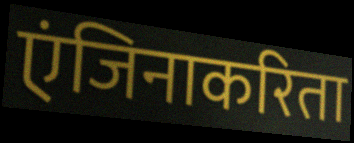
एंजिनाकरिता